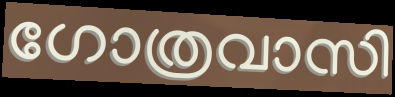
ഗോത്രവാസി